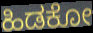
ಹಿಡಕೋ